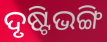
ଦୃଷ୍ଟିଭଙ୍ଗି